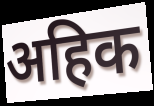
अहिक